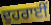
ਦੁਹਰਾਈਂ